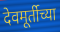
देवमूर्तीच्या